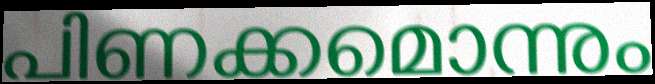
പിണക്കമൊന്നും